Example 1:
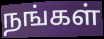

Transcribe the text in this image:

நங்கள்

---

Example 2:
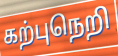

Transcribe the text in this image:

கற்புநெறி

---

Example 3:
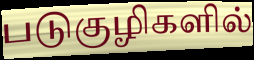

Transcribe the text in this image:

படுகுழிகளில்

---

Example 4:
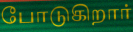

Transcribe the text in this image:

போடுகிறார்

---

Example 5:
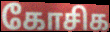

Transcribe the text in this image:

கோசிக